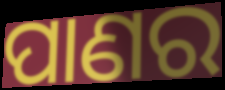
ପାଣର